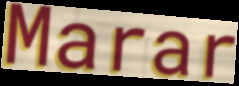
Marar